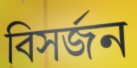
বিসর্জন